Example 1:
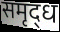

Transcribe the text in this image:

समृद्ध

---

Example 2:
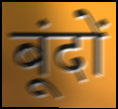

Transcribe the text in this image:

बूंदों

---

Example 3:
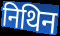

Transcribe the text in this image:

निथिन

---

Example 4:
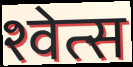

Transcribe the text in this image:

श्वेत्स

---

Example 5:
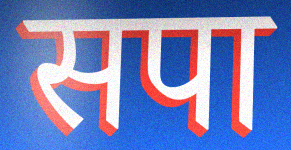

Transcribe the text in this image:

सपा